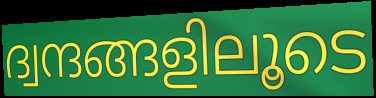
ദ്വന്ദങ്ങളിലൂടെ